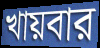
খায়বার